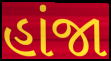
હાંજા